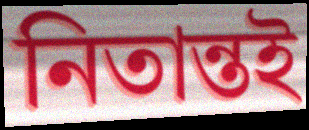
নিতান্তই